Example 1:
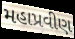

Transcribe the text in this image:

મહાપ્રવીણ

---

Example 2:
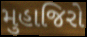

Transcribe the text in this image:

મુહાજિરો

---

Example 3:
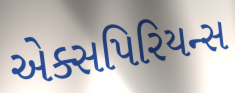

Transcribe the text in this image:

એક્સપિરિયન્સ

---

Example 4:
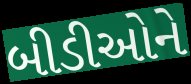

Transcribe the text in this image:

બીડીઓને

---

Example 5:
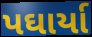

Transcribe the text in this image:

પઘાર્યા